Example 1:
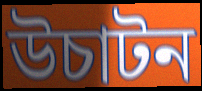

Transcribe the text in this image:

উচাটন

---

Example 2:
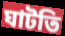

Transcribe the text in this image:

ঘাটতি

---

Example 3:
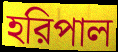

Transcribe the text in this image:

হরিপাল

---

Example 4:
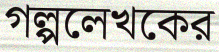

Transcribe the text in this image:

গল্পলেখকের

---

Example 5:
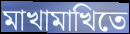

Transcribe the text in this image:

মাখামাখিতে